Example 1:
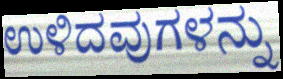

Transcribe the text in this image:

ಉಳಿದವುಗಳನ್ನು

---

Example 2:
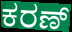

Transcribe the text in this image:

ಕರಣ್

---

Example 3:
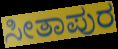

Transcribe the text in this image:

ಸೀತಾಪುರ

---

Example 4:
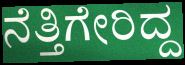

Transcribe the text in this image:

ನೆತ್ತಿಗೇರಿದ್ದ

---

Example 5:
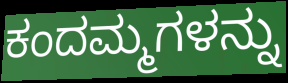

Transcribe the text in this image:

ಕಂದಮ್ಮಗಳನ್ನು